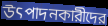
উৎপাদনকারীদের